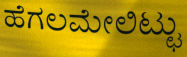
ಹೆಗಲಮೇಲಿಟ್ಟು